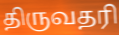
திருவதரி